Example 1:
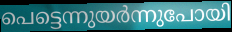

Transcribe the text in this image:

പെട്ടെന്നുയർന്നുപോയി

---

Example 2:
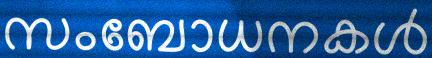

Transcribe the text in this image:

സംബോധനകൾ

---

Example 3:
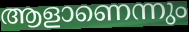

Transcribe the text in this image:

ആളാണെന്നും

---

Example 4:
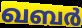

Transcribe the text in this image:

ഖബർ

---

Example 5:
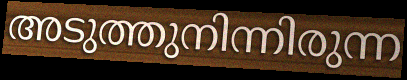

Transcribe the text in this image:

അടുത്തുനിന്നിരുന്ന